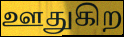
ஊதுகிற